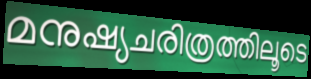
മനുഷ്യചരിത്രത്തിലൂടെ